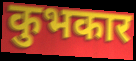
कुभकार